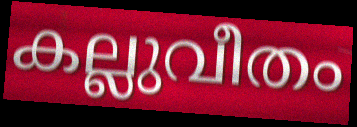
കല്ലുവീതം